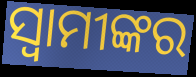
ସ୍ୱାମୀଙ୍କର